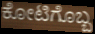
ಕೋಟಿಗೊಬ್ಬ